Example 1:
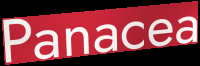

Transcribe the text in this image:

Panacea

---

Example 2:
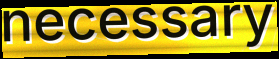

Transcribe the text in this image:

necessary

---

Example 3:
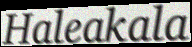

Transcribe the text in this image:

Haleakala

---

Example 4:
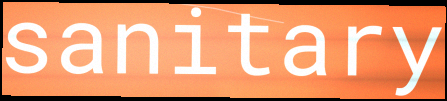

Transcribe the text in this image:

sanitary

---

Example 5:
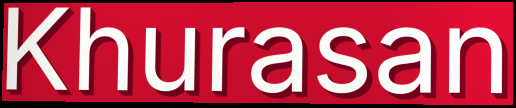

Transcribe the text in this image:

Khurasan